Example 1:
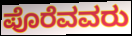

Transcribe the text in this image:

ಪೊರೆವವರು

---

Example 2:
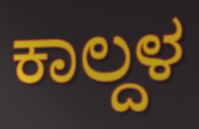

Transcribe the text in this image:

ಕಾಲ್ದಳ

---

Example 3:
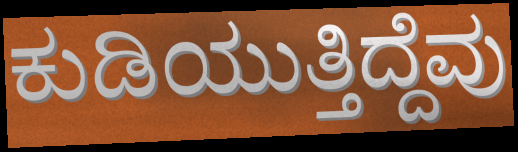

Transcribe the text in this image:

ಕುಡಿಯುತ್ತಿದ್ದೆವು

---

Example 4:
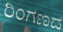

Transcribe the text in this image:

ರಿಂಗಣದ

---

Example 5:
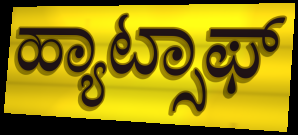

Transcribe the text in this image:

ಹ್ಯಾಟ್ಸಾಫ್